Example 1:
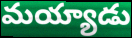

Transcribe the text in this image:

మయ్యాడు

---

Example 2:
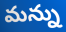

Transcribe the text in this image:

మన్ను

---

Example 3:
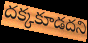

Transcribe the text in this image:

దక్కకూడదని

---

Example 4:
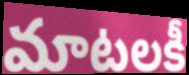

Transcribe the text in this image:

మాటలకీ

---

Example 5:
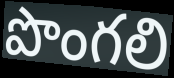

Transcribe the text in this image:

పొంగలి